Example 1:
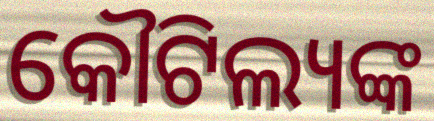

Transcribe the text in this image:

କୌଟିଲ୍ୟଙ୍କ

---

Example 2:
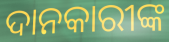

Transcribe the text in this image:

ଦାନକାରୀଙ୍କ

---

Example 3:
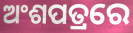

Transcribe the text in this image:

ଅଂଶପତ୍ରରେ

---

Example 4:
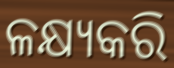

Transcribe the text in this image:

ଳକ୍ଷ୍ୟକରି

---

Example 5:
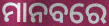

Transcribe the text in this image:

ମାନବରେ